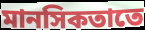
মানসিকতাতে